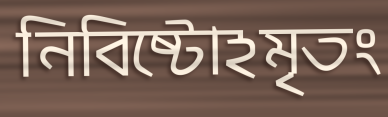
নিবিষ্টোঽমৃতং